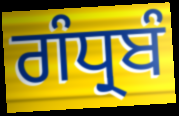
ਗੰਧ੍ਰਬੰ